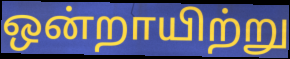
ஒன்றாயிற்று